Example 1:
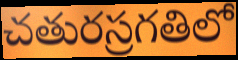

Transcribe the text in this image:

చతురస్రగతిలో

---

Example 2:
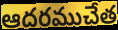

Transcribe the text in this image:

ఆదరముచేత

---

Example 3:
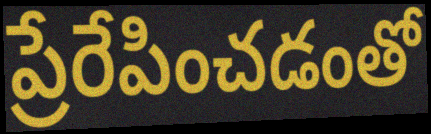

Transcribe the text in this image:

ప్రేరేపించడంతో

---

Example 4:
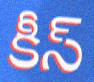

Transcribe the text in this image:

కీస్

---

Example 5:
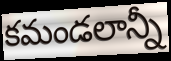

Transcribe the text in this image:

కమండలాన్నీ